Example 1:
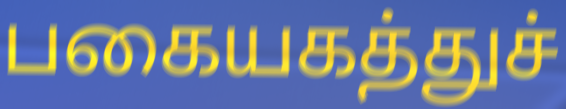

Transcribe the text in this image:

பகையகத்துச்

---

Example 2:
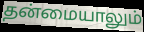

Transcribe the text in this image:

தன்மையாலும்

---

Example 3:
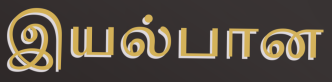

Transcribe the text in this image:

இயல்பான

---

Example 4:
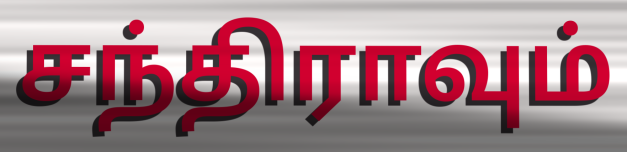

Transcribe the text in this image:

சந்திராவும்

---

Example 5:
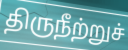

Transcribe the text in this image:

திருநீற்றுச்